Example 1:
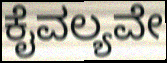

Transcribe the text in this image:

ಕೈವಲ್ಯವೇ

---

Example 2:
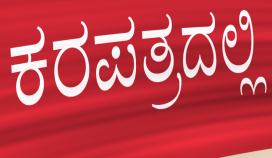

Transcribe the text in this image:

ಕರಪತ್ರದಲ್ಲಿ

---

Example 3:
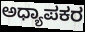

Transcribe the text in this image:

ಅಧ್ಯಾಪಕರ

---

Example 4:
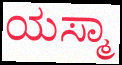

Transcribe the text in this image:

ಯಸ್ಮಾ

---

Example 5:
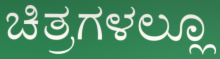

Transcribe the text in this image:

ಚಿತ್ರಗಳಲ್ಲೂ